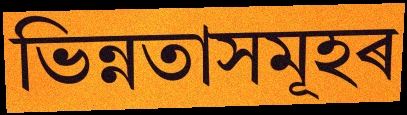
ভিন্নতাসমূহৰ